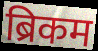
ब्रिकम